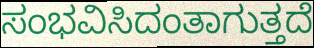
ಸಂಭವಿಸಿದಂತಾಗುತ್ತದೆ